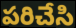
పరిచేసి